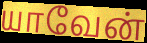
யாவேன்